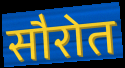
सौरोत